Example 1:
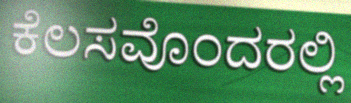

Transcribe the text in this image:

ಕೆಲಸವೊಂದರಲ್ಲಿ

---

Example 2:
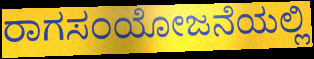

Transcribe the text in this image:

ರಾಗಸಂಯೋಜನೆಯಲ್ಲಿ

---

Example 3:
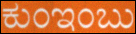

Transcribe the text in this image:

ಕುಂಇಂಬು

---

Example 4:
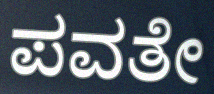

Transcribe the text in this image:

ಪವತೇ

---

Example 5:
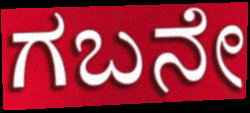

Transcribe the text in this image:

ಗಬನೇ